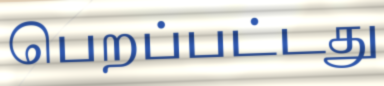
பெறப்பட்டது